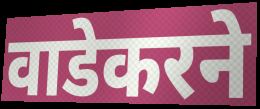
वाडेकरने